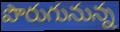
పొరుగునున్న